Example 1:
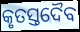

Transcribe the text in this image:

କୃତସ୍ତଦୈବ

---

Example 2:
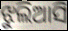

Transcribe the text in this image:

ଝୁଲିଆସି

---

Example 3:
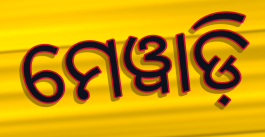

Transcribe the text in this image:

ମେୱାଡ଼ି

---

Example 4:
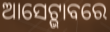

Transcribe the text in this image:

ଆସେଟ୍ଭାବରେ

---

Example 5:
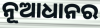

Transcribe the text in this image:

ନୂଆଧାନର